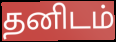
தனிடம்